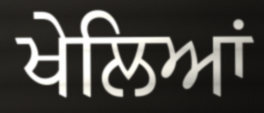
ਖੇਲਿਆਂ